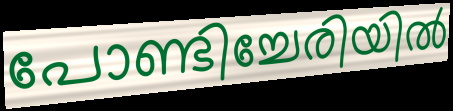
പോണ്ടിച്ചേരിയിൽ